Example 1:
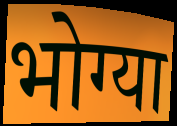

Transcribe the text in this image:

भोग्या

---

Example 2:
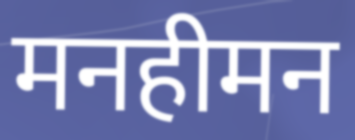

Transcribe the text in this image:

मनहीमन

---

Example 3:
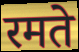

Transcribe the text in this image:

रमते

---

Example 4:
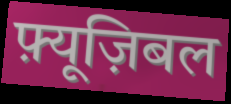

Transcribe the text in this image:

फ़्यूज़िबल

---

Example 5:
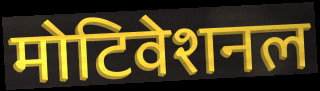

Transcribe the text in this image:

मोटिवेशनल